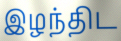
இழந்திட